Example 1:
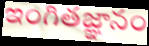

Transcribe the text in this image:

ఇంగితజ్ఞానం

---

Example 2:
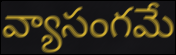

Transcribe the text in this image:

వ్యాసంగమే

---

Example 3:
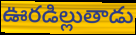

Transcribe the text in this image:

ఊరడిల్లుతాడు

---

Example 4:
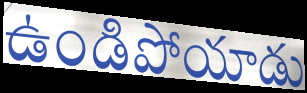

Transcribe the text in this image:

ఉండిపోయాడు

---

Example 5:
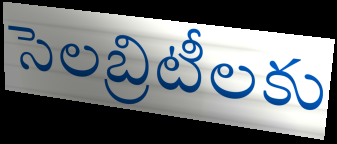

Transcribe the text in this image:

సెలబ్రిటీలకు